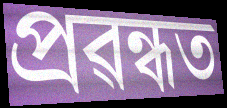
প্ৰৱন্ধত